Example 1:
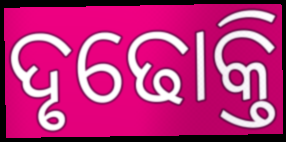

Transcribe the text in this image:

ଦୃଢୋକ୍ତି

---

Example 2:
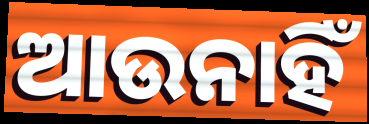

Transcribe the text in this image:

ଆଉନାହିଁ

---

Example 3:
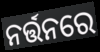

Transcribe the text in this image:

ନର୍ତ୍ତନରେ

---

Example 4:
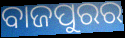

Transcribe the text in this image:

ବାଜପୁରର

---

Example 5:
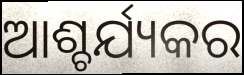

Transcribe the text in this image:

ଆଶ୍ଚର୍ଯ୍ୟକର